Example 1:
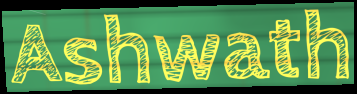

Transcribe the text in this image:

Ashwath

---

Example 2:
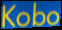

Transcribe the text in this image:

Kobo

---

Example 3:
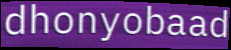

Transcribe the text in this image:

dhonyobaad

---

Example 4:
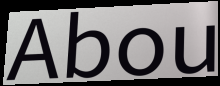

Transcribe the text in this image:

Abou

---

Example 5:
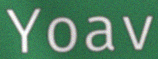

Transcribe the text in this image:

Yoav